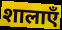
शालाएँ